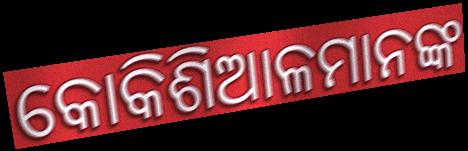
କୋକିଶିଆଳମାନଙ୍କ